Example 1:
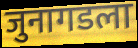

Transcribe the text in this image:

जुनागडला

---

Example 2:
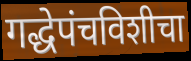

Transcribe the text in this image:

गद्धेपंचविशीचा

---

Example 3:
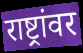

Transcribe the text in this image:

राष्ट्रांवर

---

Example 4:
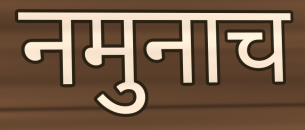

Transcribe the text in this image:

नमुनाच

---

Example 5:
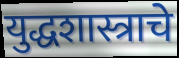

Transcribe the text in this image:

युद्धशास्त्राचे